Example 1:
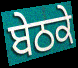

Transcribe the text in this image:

ਬੇਠਕੇ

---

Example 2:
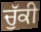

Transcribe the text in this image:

ਚੁੱਕੀ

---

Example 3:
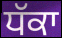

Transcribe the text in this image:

ਧੱਕਾ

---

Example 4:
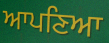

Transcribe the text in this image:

ਆਪਣਿਆ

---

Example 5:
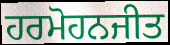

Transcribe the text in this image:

ਹਰਮੋਹਨਜੀਤ